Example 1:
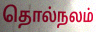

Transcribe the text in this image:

தொல்நலம்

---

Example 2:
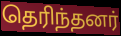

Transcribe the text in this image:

தெரிந்தனர்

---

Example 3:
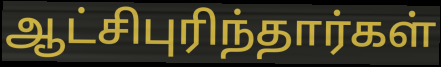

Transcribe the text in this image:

ஆட்சிபுரிந்தார்கள்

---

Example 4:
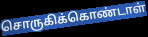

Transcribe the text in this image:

சொருகிக்கொண்டாள்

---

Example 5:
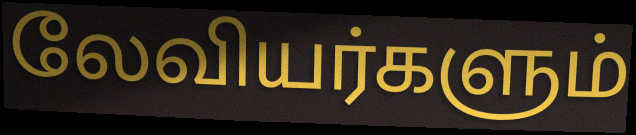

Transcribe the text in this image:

லேவியர்களும்